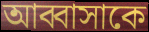
আব্বাসাকে